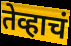
तेव्हाचं